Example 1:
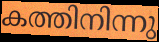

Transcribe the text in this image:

കത്തിനിന്നു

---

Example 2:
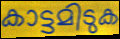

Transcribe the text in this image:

കാട്ടമിടുക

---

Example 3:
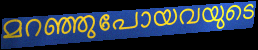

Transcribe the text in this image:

മറഞ്ഞുപോയവയുടെ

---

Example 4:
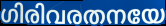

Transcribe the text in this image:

ഗിരിവരതനയേ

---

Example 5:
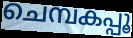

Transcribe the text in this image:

ചെമ്പകപ്പൂ